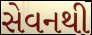
સેવનથી